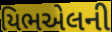
યિભએલની